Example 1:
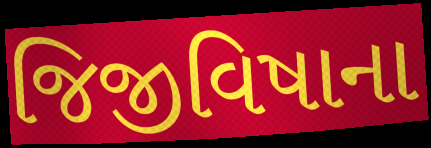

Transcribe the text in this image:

જિજીવિષાના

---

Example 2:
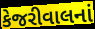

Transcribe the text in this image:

કેજરીવાલનાં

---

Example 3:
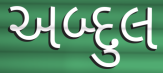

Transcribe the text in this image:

અબ્દુલ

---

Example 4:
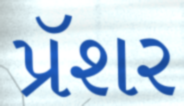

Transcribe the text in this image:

પ્રૅશર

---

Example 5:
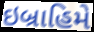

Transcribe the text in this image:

ઇબ્રાહિમે